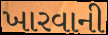
ખારવાની